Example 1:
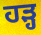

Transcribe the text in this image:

ਹੜ੍ਹ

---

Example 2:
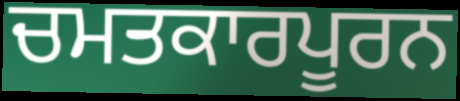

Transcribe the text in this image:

ਚਮਤਕਾਰਪੂਰਨ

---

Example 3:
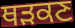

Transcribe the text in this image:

ਥੜਕਣ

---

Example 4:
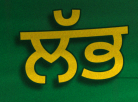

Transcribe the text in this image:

ਲੱਭ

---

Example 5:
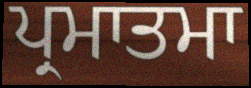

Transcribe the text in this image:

ਪ੍ਰਮਾਤਮਾ